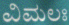
ವಿಮಲಃ